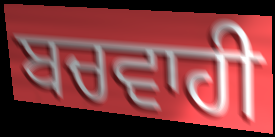
ਬਚਵਾਹੀ